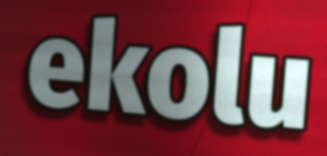
ekolu